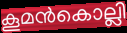
കൂമൻകൊല്ലി